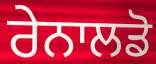
ਰੇਨਾਲਡੋ